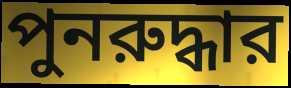
পুনরুদ্ধার